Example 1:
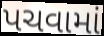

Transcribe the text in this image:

પચવામાં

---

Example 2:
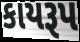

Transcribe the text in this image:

કાયરૂપ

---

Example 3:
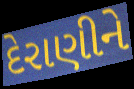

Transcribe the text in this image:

દેરાણીને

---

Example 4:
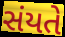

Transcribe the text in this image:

સંયતે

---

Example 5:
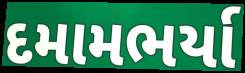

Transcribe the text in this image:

દમામભર્યા